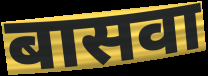
बासवा